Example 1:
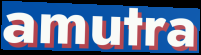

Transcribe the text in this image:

amutra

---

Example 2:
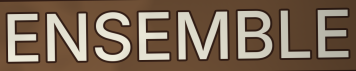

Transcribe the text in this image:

ENSEMBLE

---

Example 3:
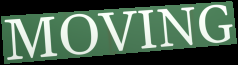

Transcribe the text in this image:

MOVING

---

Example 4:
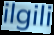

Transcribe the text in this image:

ilgili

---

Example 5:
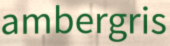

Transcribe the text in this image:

ambergris